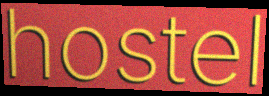
hostel